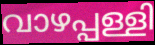
വാഴപ്പള്ളി